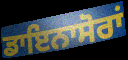
ਡਾਇਨਾਸੋਰਾਂ